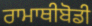
ਰਾਮਾਥੀਬੋਡੀ